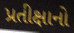
પ્રતીક્ષાનો